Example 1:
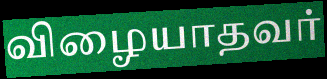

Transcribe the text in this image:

விழையாதவர்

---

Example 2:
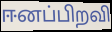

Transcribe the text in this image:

ஈனப்பிறவி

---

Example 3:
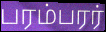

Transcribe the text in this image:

பரம்பரர்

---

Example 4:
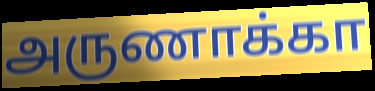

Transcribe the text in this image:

அருணாக்கா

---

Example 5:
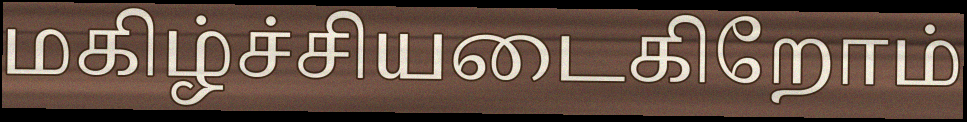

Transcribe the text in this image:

மகிழ்ச்சியடைகிறோம்